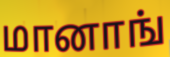
மானாங்